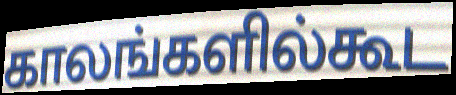
காலங்களில்கூட